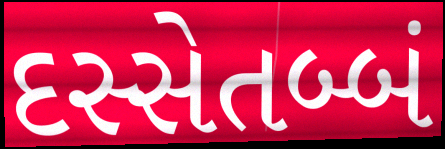
દસ્સેતબ્બં